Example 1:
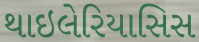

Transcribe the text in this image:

થાઇલેરિયાસિસ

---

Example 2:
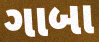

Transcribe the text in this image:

ગાબા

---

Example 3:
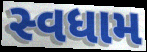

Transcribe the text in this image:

સ્વધામ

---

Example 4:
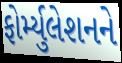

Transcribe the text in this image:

ફોર્મ્યુલેશનને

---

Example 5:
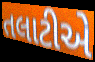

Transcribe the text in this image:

તલાટીએ